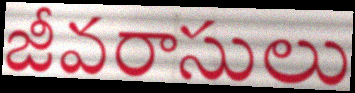
జీవరాసులు